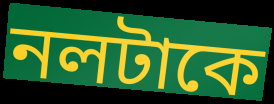
নলটাকে